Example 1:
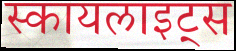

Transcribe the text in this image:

स्कायलाइट्स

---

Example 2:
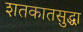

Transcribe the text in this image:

शतकातसुद्धा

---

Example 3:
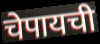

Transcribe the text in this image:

चेपायची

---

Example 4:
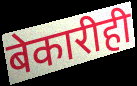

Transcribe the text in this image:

बेकारीही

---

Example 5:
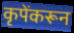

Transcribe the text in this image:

कृपेंकरून